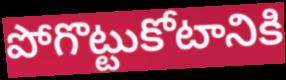
పోగొట్టుకోటానికి